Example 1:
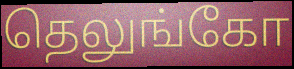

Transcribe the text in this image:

தெலுங்கோ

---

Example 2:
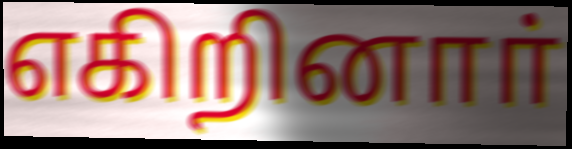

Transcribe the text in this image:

எகிறினார்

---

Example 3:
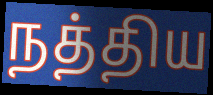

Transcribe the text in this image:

நத்திய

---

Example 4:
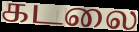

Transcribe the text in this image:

கடலை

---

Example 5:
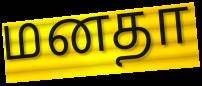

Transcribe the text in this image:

மனதா